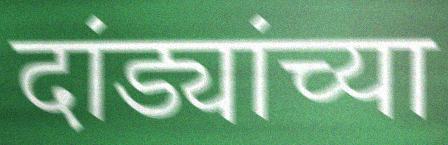
दांड्यांच्या